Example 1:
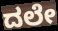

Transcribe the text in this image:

ದಲೇ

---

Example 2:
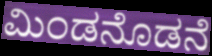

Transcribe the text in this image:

ಮಿಂಡನೊಡನೆ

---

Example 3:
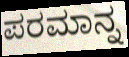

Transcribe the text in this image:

ಪರಮಾನ್ನ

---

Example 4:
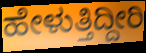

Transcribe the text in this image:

ಹೇಳುತ್ತಿದ್ದೀರಿ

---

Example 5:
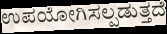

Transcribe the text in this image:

ಉಪಯೋಗಿಸಲ್ಪಡುತ್ತದೆ